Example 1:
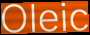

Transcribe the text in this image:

Oleic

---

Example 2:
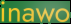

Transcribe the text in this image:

inawo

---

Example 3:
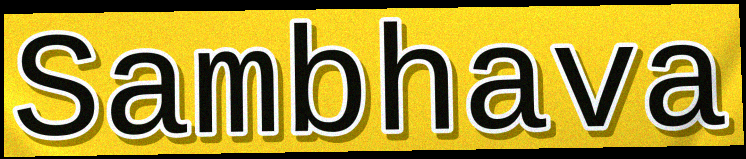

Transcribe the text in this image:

Sambhava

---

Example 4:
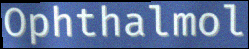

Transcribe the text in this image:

Ophthalmol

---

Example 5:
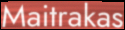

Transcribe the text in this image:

Maitrakas